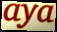
aya